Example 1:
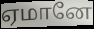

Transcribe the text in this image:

ஏமானே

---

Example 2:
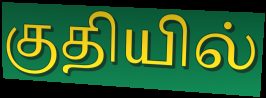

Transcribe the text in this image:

குதியில்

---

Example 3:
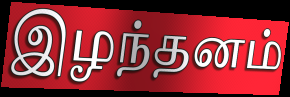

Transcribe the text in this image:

இழந்தனம்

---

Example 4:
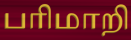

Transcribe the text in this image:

பரிமாறி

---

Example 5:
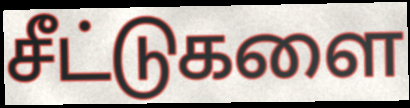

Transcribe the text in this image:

சீட்டுகளை